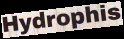
Hydrophis